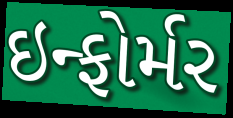
ઇન્ફોર્મર